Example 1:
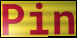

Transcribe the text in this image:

Pin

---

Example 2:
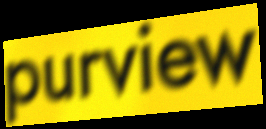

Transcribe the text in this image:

purview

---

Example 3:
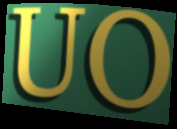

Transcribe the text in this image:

UO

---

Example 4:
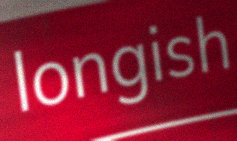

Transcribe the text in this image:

longish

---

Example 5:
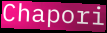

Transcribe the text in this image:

Chapori